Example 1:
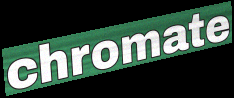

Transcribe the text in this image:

chromate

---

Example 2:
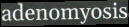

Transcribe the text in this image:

adenomyosis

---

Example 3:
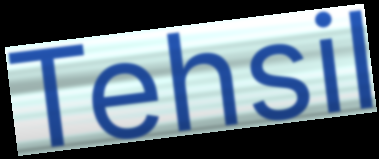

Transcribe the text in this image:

Tehsil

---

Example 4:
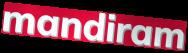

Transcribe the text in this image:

mandiram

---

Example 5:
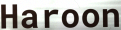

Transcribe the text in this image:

Haroon